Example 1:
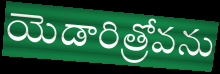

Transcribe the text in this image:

యెడారిత్రోవను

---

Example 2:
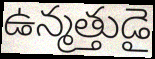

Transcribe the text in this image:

ఉన్మత్తుడై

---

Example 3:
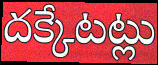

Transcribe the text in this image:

దక్కేటట్లు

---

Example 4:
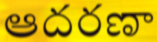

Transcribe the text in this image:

ఆదరణా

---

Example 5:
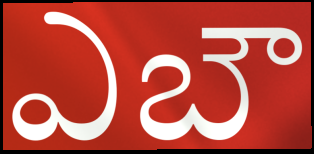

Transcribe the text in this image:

ఎబౌ